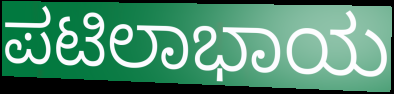
ಪಟಿಲಾಭಾಯ